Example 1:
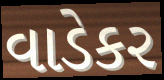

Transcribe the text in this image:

વાડેકર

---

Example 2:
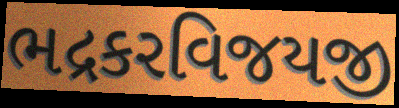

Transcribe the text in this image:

ભદ્રકરવિજયજી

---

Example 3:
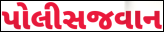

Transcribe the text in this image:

પોલીસજવાન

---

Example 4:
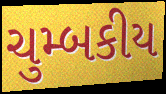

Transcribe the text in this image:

ચુમ્બકીય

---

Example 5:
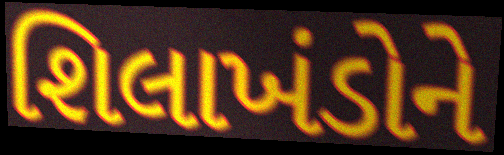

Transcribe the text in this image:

શિલાખંડોને